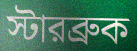
স্টারব্রুক